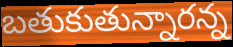
బతుకుతున్నారన్న